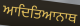
ਆਦਿਤਿਆਨਾਥ